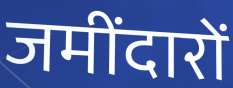
जमींदारों